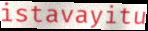
istavayitu